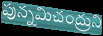
పున్నమిచంద్రుని